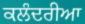
ਕਲੰਦਰੀਆ